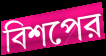
বিশপের